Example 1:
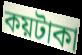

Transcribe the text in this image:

কয়টাকা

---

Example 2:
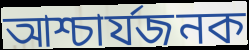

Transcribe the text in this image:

আশ্চার্যজনক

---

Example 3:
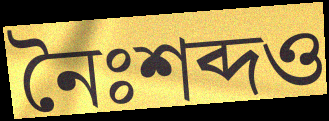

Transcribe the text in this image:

নৈঃশব্দও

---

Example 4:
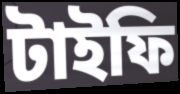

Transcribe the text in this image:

টাইফি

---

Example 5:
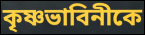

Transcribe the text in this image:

কৃষ্ণভাবিনীকে